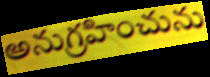
అనుగ్రహించును